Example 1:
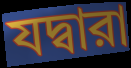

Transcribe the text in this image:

যদ্বারা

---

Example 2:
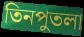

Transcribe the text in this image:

তিনপুতলা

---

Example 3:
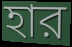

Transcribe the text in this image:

হার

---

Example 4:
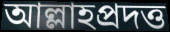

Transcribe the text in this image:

আল্লাহপ্রদত্ত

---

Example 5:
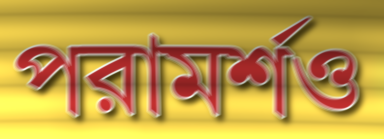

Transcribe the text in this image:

পরামর্শও